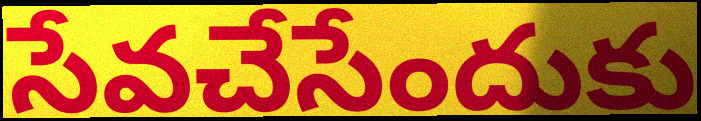
సేవచేసేందుకు